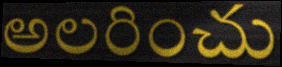
అలరించు